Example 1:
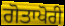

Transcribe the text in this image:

ਗੋਤਾਖੋਰੀ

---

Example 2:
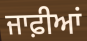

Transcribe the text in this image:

ਜਾਫ਼ੀਆਂ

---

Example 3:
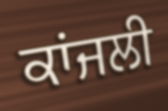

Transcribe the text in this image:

ਕਾਂਜਲੀ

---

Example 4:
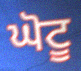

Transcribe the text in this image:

ਘੋਟੂ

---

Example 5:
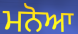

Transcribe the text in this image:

ਮਨੋਆ